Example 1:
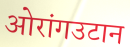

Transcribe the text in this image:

ओरांगउटान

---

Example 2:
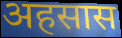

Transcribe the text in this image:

अहसास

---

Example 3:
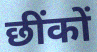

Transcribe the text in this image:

छींकों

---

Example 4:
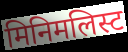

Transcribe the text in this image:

मिनिमलिस्ट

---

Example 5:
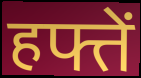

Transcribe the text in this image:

हफ्तें